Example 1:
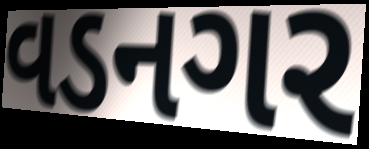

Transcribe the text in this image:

વડનગર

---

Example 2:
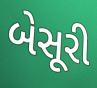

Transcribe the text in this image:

બેસૂરી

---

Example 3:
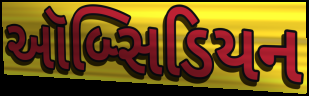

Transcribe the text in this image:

ઑબ્સિડિયન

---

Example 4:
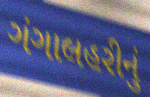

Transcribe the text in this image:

ગંગાલહરીનું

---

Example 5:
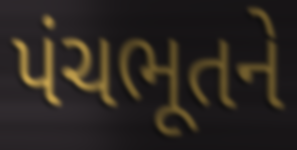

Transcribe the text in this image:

પંચભૂતને